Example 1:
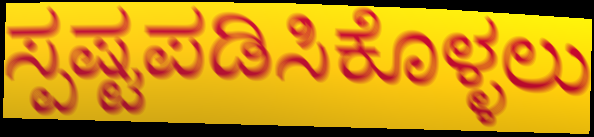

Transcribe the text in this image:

ಸ್ಪಷ್ಟಪಡಿಸಿಕೊಳ್ಳಲು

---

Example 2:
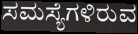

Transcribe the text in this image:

ಸಮಸ್ಯೆಗಳಿರುವ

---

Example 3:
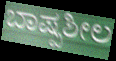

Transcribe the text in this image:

ಬಾಷ್ಪಶೀಲ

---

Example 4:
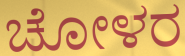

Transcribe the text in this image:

ಚೋಳರ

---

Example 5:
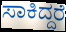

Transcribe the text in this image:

ಸಾಕಿದ್ದರೆ